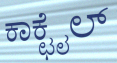
ಕಾಕ್ಟೈಲ್